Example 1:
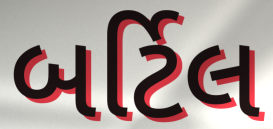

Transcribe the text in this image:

બર્ટિલ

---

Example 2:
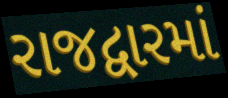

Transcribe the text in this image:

રાજદ્વારમાં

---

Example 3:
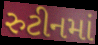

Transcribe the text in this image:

રુટીનમાં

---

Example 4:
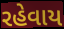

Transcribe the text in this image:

રહેવાય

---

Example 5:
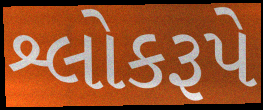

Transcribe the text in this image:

શ્લોકરૂપે